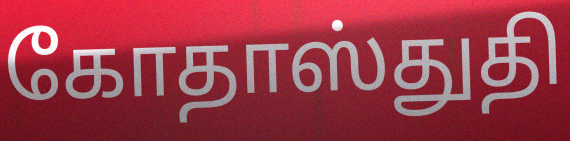
கோதாஸ்துதி